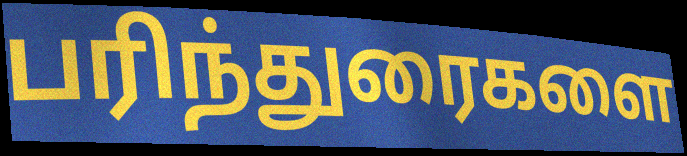
பரிந்துரைகளை